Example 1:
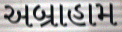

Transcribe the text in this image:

અબ્રાહામ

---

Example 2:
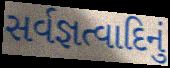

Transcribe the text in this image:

સર્વજ્ઞત્વાદિનું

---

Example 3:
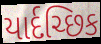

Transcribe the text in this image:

યાર્દચ્છિક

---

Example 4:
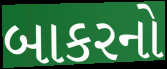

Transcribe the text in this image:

બાકરનો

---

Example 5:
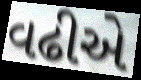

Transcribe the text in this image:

વઢીએ